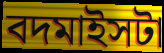
বদমাইসটা